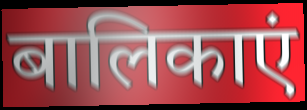
बालिकाएं